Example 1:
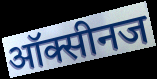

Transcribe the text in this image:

ऑक्सीनज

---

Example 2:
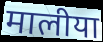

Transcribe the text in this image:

मालीया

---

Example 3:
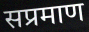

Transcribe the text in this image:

सप्रमाण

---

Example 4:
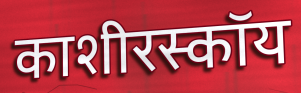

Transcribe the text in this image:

काशीरस्कॉय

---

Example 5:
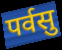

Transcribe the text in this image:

पर्वसु